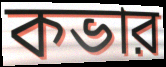
কভার